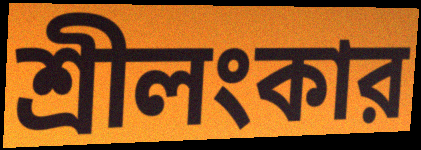
শ্রীলংকার